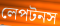
লেপটনস